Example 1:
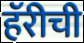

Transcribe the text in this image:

हॅरीची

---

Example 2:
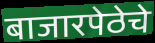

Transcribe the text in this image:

बाजारपेठेचे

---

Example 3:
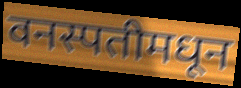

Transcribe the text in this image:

वनस्पतीमधून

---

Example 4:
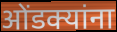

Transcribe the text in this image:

ओंडक्यांना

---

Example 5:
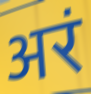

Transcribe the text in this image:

अरं